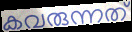
കവരുന്നത്